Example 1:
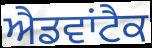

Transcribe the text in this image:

ਐਡਵਾਂਟੈਕ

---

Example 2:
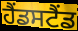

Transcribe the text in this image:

ਹੈਂਡਸਟੈਂਡ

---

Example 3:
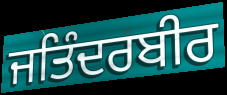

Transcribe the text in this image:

ਜਤਿੰਦਰਬੀਰ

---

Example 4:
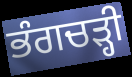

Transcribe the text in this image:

ਭੰਗਚੜ੍ਹੀ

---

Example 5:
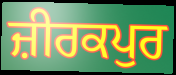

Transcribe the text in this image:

ਜ਼ੀਰਕਪੁਰ